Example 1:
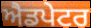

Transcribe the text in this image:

ਐਡਪੇਟਰ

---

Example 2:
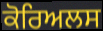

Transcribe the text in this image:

ਕੋਰਿਅਲਸ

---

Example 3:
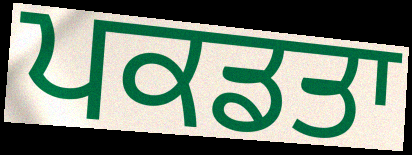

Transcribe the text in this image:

ਪਕਡਤਾ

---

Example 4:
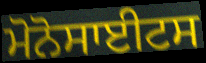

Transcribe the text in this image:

ਮੋਨੋਸਾਈਟਸ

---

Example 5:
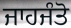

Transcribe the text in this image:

ਜਾਹਜੰਤੋ